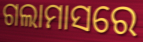
ଗଲାମାସରେ